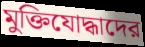
মুক্তিযোদ্ধাদের